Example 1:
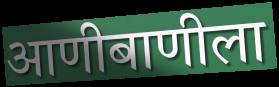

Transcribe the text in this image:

आणीबाणीला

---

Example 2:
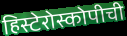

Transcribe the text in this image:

हिस्टेरोस्कोपीची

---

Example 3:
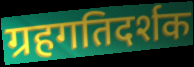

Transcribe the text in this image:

ग्रहगतिदर्शक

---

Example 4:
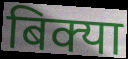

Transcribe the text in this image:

बिक्या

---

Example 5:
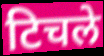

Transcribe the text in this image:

टिचले